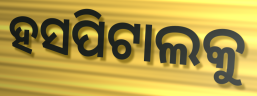
ହସପିଟାଲକୁ